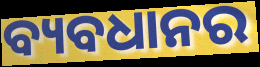
ବ୍ୟବଧାନର